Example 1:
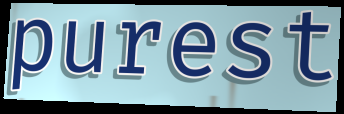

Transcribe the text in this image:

purest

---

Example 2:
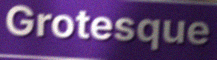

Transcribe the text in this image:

Grotesque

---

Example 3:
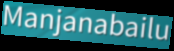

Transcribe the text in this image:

Manjanabailu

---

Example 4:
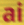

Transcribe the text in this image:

ai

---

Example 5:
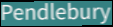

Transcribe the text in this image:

Pendlebury